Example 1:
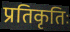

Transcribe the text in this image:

प्रतिकृतिः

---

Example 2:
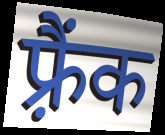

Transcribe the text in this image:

फ़्रैंक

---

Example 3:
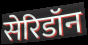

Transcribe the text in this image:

सेरिडॉन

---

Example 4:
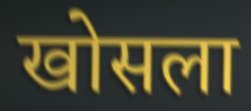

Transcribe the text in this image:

खोसला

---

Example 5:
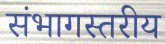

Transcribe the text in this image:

संभागस्तरीय